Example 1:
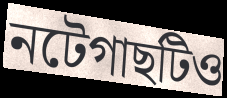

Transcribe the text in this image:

নটেগাছটিও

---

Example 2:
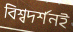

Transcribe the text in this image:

বিশ্বদর্শনই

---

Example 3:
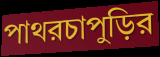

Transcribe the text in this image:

পাথরচাপুড়ির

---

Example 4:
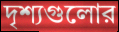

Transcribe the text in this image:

দৃশ্যগুলোর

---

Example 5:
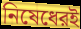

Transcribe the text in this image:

নিষেধেরই